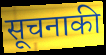
सूचनाकी